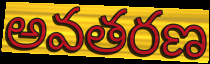
అవతరణ